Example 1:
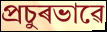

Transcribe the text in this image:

প্ৰচুৰভাৱে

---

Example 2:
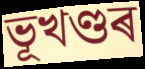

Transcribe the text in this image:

ভূখণ্ডৰ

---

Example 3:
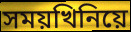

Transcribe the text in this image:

সময়খিনিয়ে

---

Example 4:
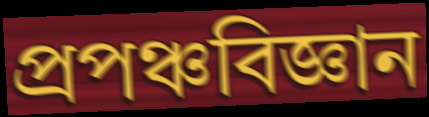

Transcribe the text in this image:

প্ৰপঞ্চবিজ্ঞান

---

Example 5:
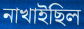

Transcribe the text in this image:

নাখাইছিল